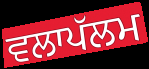
ਵਲਾਪੱਲਮ